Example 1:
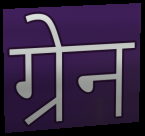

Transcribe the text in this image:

ग्रेन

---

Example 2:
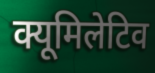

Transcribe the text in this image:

क्यूमिलेटिव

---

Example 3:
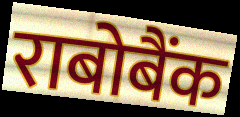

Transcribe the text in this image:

राबोबैंक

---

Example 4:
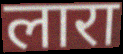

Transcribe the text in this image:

लारा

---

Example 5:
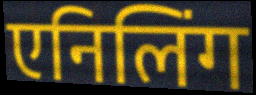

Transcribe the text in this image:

एनिलिंग